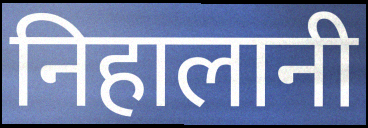
निहालानी